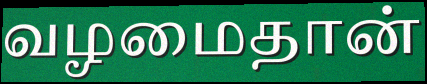
வழமைதான்